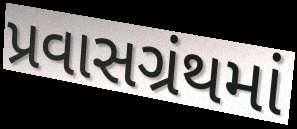
પ્રવાસગ્રંથમાં